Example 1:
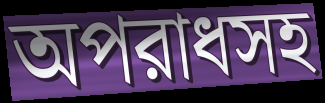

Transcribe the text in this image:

অপরাধসহ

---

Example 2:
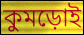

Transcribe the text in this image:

কুমড়োই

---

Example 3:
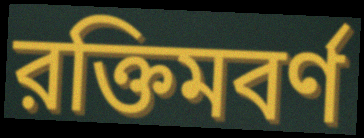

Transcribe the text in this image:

রক্তিমবর্ণ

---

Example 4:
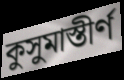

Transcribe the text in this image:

কুসুমাস্তীর্ণ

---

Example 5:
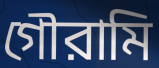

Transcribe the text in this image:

গৌরামি